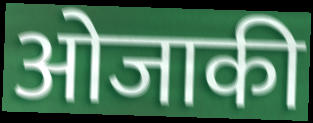
ओजाकी